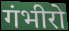
गंभीरो